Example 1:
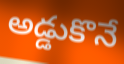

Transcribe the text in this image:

అడ్డుకొనే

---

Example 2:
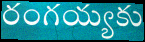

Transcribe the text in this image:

రంగయ్యకు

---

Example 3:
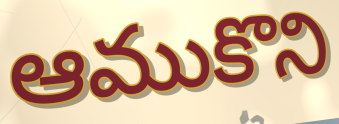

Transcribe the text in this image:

ఆముకొని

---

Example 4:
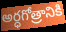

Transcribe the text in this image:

అర్ధగోత్రానికి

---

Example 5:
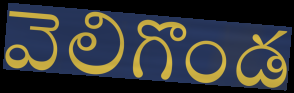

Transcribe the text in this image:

వెలిగొండ